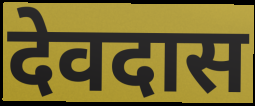
देवदास